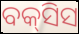
ବକ୍‍ସିସ